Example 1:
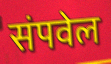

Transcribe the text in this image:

संपवेल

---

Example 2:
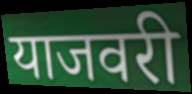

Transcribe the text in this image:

याजवरी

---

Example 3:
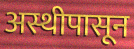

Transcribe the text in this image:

अस्थीपासून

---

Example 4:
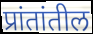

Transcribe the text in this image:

प्रांतांतील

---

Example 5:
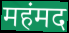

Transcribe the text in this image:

महंमद